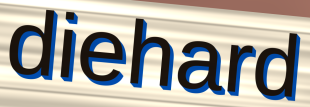
diehard